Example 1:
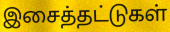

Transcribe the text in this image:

இசைத்தட்டுகள்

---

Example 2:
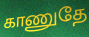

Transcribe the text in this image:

காணுதே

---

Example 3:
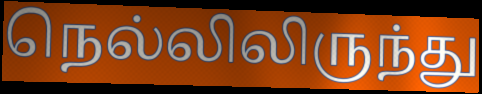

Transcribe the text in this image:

நெல்லிலிருந்து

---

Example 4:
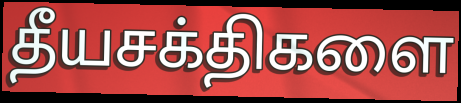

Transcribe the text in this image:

தீயசக்திகளை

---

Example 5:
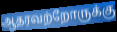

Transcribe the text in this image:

ஆதரவற்றோருக்கு